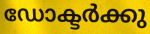
ഡോക്ടർക്കു